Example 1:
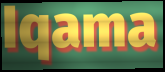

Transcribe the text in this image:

Iqama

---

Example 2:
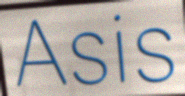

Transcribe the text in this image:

Asis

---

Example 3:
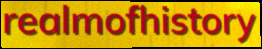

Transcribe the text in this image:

realmofhistory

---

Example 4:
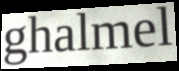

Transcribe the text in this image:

ghalmel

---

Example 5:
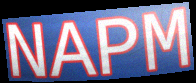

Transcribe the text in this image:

NAPM